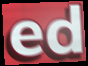
ed